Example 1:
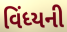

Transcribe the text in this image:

વિંધ્યની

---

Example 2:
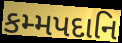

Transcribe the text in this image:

કમ્મપદાનિ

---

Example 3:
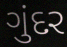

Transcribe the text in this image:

ગુંદર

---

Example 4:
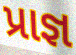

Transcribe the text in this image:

પ્રાજ્ઞ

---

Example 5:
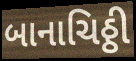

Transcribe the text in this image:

બાનાચિઠ્ઠી